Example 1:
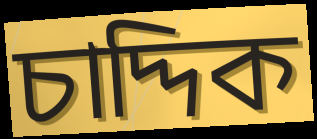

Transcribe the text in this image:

চাদ্দিক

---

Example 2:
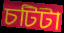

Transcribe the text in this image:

চটিটা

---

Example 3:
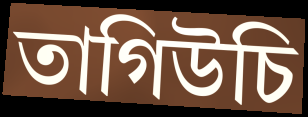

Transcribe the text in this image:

তাগিউচি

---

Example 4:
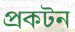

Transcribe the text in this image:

প্রকটন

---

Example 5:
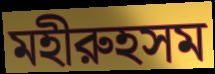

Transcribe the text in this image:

মহীরুহসম